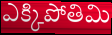
ఎక్కిపోతిమి